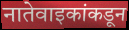
नातेवाइकांकडून